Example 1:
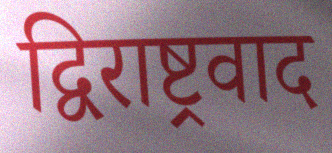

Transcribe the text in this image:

द्विराष्ट्रवाद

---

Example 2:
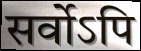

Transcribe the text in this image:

सर्वोऽपि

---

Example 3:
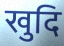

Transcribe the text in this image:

खुदि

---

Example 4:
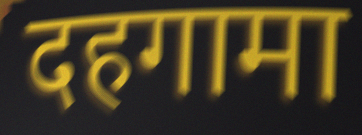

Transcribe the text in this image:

दहगामा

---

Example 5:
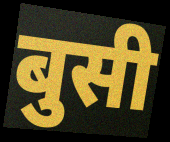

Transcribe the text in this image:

बुसी